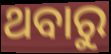
ଥବାରୁ